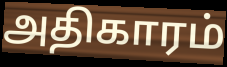
அதிகாரம்